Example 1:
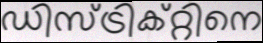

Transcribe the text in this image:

ഡിസ്ട്രിക്റ്റിനെ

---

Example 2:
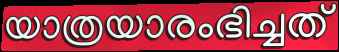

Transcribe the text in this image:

യാത്രയാരംഭിച്ചത്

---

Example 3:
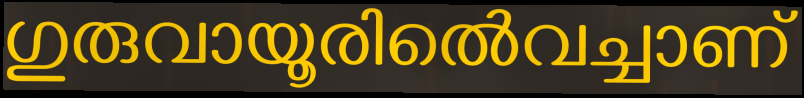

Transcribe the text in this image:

ഗുരുവായൂരിൽെവച്ചാണ്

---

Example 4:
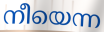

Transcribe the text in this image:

നീയെന്ന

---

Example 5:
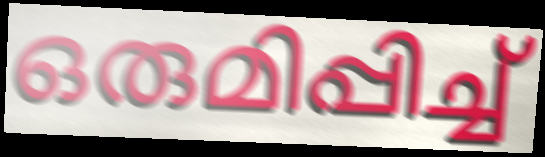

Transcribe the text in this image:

ഒരുമിപ്പിച്ച്